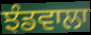
ਝੰਡਵਾਲਾ